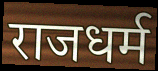
राजधर्म